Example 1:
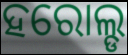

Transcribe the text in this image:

ହରୋଲ୍ଡ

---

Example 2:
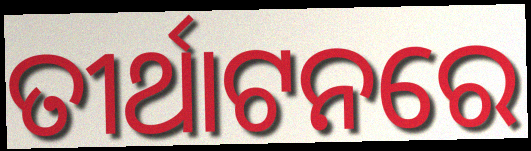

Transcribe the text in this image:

ତୀର୍ଥାଟନରେ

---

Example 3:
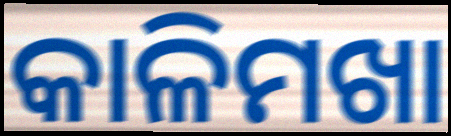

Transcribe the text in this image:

କାଳିମଖା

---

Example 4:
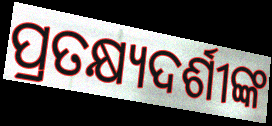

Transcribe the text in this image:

ପ୍ରତକ୍ଷ୍ୟଦର୍ଶୀଙ୍କ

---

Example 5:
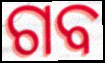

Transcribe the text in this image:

ଗବ